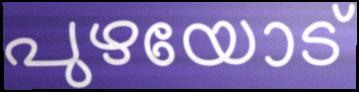
പുഴയോട്